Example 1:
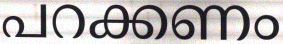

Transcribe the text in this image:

പറക്കണം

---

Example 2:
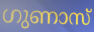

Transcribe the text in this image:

ഗുണാസ്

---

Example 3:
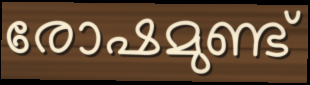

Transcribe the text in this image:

രോഷമുണ്ട്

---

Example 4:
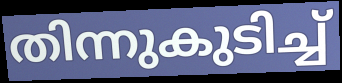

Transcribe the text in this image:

തിന്നുകുടിച്ച്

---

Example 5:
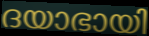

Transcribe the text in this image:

ദയാഭായി